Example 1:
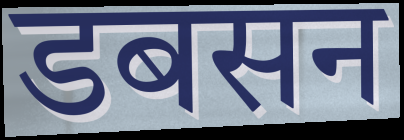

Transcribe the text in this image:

डबसन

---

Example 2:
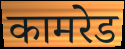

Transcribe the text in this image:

कामरेड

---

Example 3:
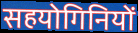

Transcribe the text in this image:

सहयोगिनियों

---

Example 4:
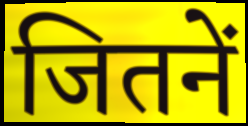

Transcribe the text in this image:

जितनें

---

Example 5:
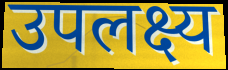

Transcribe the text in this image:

उपलक्ष्य